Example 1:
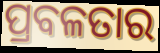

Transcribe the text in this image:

ପ୍ରବଳତାର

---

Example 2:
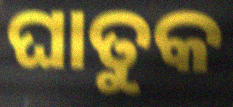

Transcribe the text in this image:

ଘାତୁକ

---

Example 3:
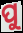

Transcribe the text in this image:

ପୁ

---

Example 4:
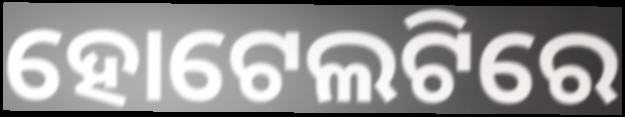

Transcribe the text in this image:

ହୋଟେଲଟିରେ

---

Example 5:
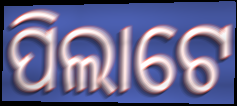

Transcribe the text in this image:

ପିଲାଟେ